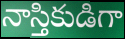
నాస్తికుడిగా